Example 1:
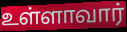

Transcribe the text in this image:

உள்ளாவார்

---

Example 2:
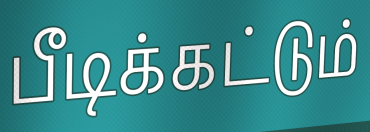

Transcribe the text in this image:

பீடிக்கட்டும்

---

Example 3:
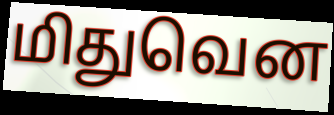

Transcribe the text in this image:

மிதுவென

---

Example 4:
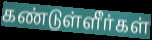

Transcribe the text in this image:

கண்டுள்ளீர்கள்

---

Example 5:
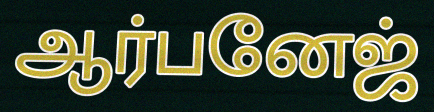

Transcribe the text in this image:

ஆர்பனேஜ்